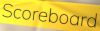
Scoreboard